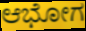
ಆಭೋಗ